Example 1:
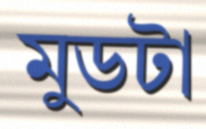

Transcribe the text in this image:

মুডটা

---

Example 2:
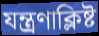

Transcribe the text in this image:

যন্ত্রণাক্লিষ্ট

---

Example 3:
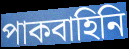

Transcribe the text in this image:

পাকবাহিনি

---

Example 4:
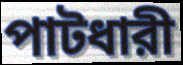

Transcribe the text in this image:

পাটধারী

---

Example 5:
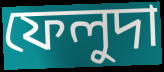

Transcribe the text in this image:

ফেলুদা